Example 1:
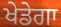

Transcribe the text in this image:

ਖੇਡੇਗਾ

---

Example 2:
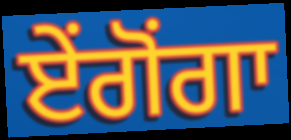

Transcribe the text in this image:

ਏਂਗੋਂਗਾ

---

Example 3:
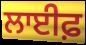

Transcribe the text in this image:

ਲਾਈਫ਼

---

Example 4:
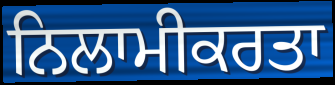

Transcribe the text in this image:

ਨਿਲਾਮੀਕਰਤਾ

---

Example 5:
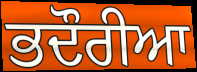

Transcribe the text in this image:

ਭਦੌਰੀਆ